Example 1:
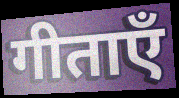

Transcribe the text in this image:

गीताएँ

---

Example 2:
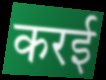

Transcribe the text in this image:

करई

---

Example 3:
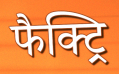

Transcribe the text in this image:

फैक्ट्रि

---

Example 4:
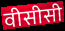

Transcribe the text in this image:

वीसीसी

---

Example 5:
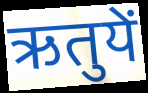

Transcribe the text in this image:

ऋतुयें